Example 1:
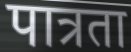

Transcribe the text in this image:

पात्रता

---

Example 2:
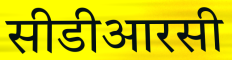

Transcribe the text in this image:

सीडीआरसी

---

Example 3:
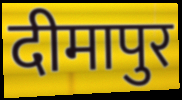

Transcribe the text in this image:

दीमापुर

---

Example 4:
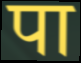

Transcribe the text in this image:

पा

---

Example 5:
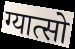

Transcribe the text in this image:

ग्यात्सो